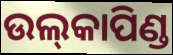
ଉଲ୍‌କାପିଣ୍ଡ